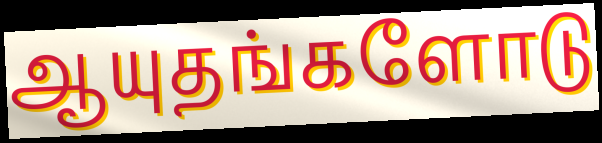
ஆயுதங்களோடு